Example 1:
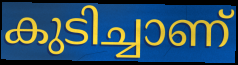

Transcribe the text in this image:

കുടിച്ചാണ്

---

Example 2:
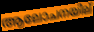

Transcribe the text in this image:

ആലോചനയില്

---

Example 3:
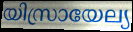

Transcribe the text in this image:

യിസ്രായേല്യ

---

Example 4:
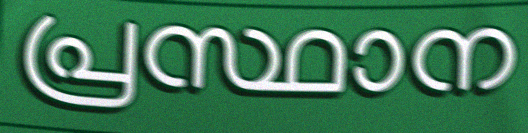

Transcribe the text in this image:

പ്രസ്ഥാന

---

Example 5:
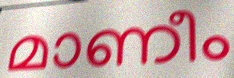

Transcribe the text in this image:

മാണീം